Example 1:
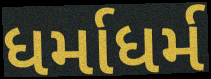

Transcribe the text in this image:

ધર્માધર્મ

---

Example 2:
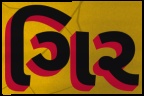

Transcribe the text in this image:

ગિર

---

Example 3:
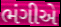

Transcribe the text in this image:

ભંગીએ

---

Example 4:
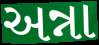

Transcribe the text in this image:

અન્ના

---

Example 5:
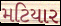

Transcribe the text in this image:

મટિયાર